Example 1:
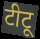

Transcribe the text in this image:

टीटू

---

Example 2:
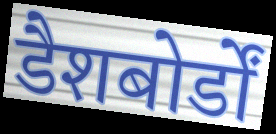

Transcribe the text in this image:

डैशबोर्डों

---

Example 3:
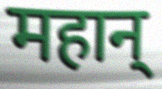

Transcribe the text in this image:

महान्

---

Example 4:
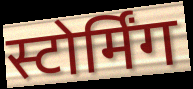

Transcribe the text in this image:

स्टोर्मिंग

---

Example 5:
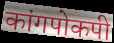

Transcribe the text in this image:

कांगपोकपी